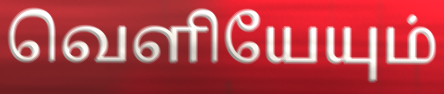
வெளியேயும்